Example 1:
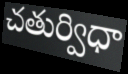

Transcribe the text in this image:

చతుర్విధా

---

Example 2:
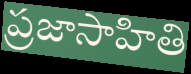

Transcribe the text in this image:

ప్రజాసాహితి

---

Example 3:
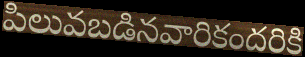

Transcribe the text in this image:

పిలువబడినవారికందరికి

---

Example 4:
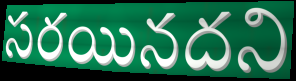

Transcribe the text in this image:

సరయినదని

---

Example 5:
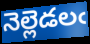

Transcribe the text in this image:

నెల్లెడలఁ